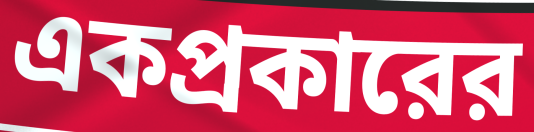
একপ্রকারের